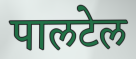
पालटेल